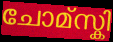
ചോമ്സ്കി